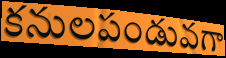
కనులపండువగా